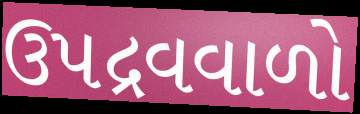
ઉપદ્રવવાળો